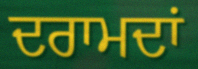
ਦਰਾਮਦਾਂ